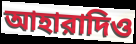
আহারাদিও